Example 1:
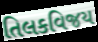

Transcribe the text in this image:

તિલકવિજય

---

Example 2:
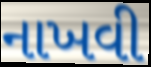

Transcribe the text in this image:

નાખવી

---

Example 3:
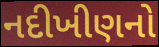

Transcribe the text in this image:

નદીખીણનો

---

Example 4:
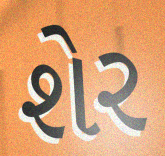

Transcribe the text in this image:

શેર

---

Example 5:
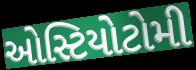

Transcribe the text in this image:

ઓસ્ટિયોટોમી